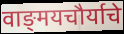
वाङ्मयचौर्याचे